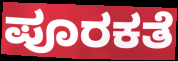
ಪೂರಕತೆ